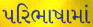
પરિભાષામાં